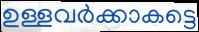
ഉള്ളവർക്കാകട്ടെ